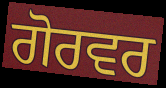
ਗੋਰਵਰ